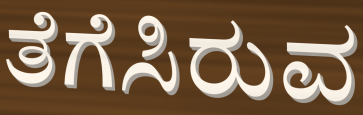
ತೆಗೆಸಿರುವ